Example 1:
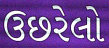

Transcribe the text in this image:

ઉછરેલો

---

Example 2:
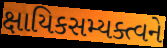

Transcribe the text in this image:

ક્ષાયિકસમ્યક્ત્વને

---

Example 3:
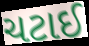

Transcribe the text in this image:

ચટાઈ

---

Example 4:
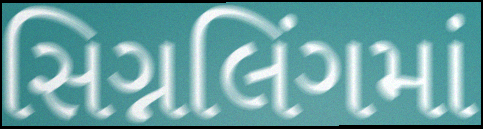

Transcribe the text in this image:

સિગ્નલિંગમાં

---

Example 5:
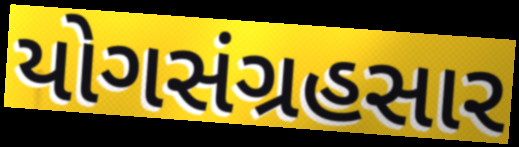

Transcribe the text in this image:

યોગસંગ્રહસાર